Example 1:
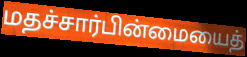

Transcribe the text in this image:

மதச்சார்பின்மையைத்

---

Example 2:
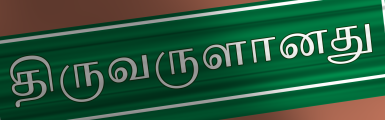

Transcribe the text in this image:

திருவருளானது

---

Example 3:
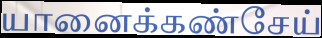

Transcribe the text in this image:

யானைக்கண்சேய்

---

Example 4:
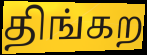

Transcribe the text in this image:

திங்கற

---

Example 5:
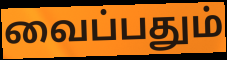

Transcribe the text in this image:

வைப்பதும்